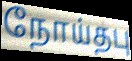
நோய்தபு